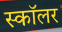
स्कॉलर